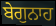
ਬੇਗੁਨਾਹ